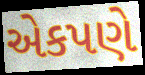
એકપણે